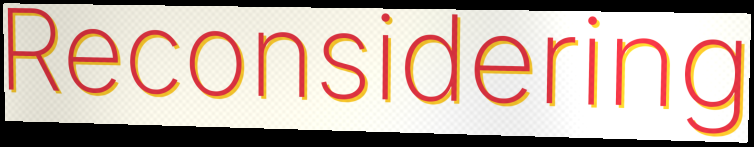
Reconsidering